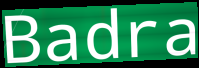
Badra